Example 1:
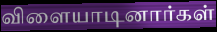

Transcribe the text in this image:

விளையாடினார்கள்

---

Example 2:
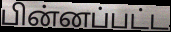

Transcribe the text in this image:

பின்னப்பட்ட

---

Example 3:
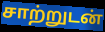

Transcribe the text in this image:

சாற்றுடன்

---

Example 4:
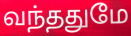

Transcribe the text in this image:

வந்ததுமே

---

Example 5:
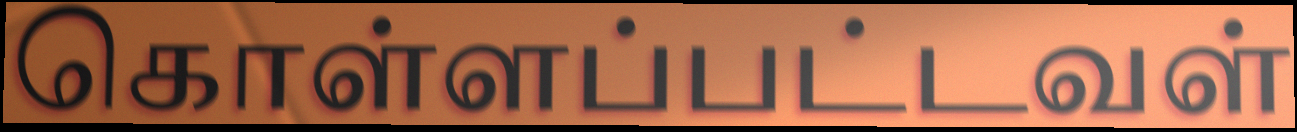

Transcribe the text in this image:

கொள்ளப்பட்டவள்